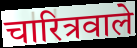
चारित्रवाले